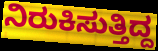
ನಿರುಕಿಸುತ್ತಿದ್ದ